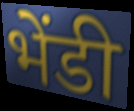
भेंडी